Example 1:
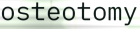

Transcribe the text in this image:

osteotomy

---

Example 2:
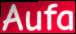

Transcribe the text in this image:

Aufa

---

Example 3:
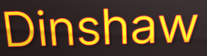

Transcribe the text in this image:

Dinshaw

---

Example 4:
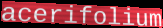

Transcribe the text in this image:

acerifolium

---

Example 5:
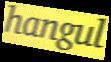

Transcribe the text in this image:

hangul